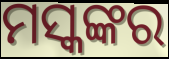
ମସ୍କଙ୍କର